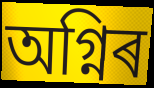
অগ্নিৰ